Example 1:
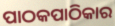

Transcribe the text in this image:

ପାଠକପାଠିକାର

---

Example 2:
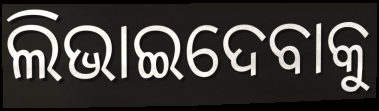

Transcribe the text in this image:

ଲିଭାଇଦେବାକୁ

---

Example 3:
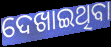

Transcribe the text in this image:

ଦେଖାଇଥିବା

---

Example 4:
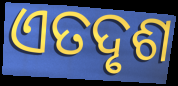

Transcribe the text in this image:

ଏତଦୃଶ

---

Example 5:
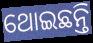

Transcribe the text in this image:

ଥୋଇଛନ୍ତି